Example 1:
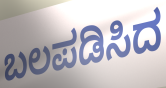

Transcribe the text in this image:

ಬಲಪಡಿಸಿದ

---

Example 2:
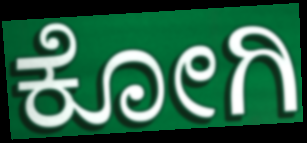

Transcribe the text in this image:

ಕೋಗಿ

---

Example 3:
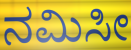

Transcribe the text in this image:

ನಮಿಸೀ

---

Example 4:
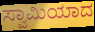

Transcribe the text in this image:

ಸ್ವಾಮಿಯಾದ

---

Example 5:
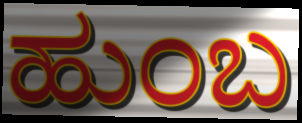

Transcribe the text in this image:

ಹುಂಬ